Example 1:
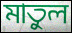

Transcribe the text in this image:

মাতুল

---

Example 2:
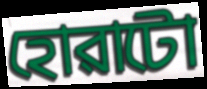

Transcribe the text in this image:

হোৱাটো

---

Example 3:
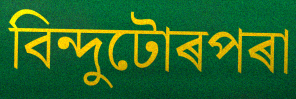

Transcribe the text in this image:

বিন্দুটোৰপৰা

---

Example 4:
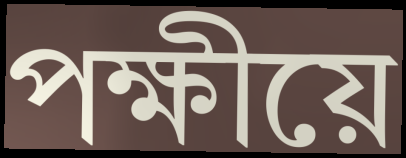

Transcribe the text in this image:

পক্ষীয়ে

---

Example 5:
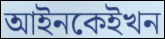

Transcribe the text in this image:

আইনকেইখন